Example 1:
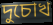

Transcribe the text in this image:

দুচোখ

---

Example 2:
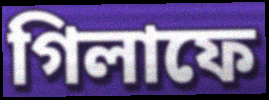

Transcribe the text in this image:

গিলাফে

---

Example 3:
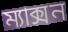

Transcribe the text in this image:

ম্যাক্সন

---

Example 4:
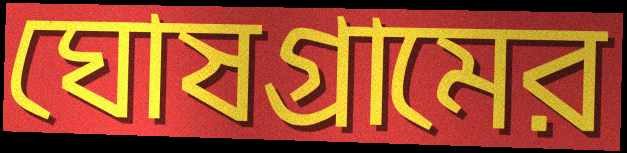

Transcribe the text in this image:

ঘোষগ্রামের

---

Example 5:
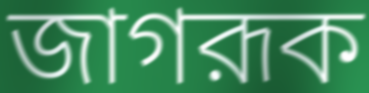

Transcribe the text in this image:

জাগরূক